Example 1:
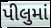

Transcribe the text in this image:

પીલુમાં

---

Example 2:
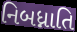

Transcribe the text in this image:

નિબધ્નાતિ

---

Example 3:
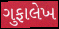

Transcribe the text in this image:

ગુફાલેખ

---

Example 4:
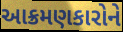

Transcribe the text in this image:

આક્રમણકારોને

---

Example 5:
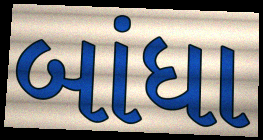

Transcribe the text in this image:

બાંધા